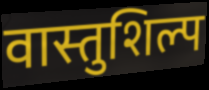
वास्तुशिल्प